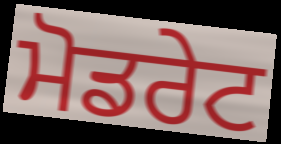
ਮੋਡਰੇਟ